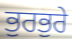
ਭੁਰਭੁਰੇ